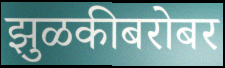
झुळकीबरोबर